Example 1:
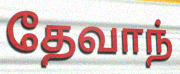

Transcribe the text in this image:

தேவாந்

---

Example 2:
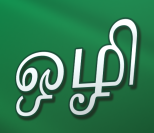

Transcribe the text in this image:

ஒழி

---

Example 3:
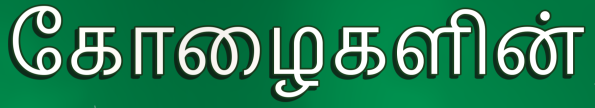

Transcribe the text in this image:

கோழைகளின்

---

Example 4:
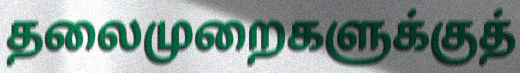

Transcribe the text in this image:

தலைமுறைகளுக்குத்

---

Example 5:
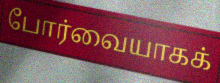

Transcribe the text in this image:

போர்வையாகக்